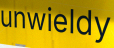
unwieldy